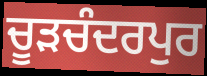
ਚੂੜਚੰਦਰਪੁਰ